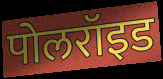
पोलरॉइड